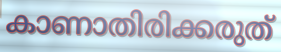
കാണാതിരിക്കരുത്